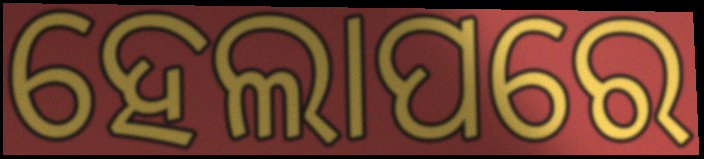
ହେଲାପରେ